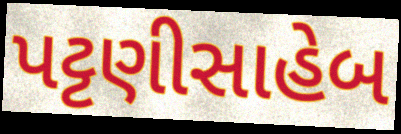
પટ્ટણીસાહેબ